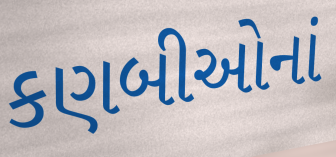
કણબીઓનાં